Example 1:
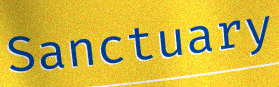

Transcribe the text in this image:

Sanctuary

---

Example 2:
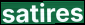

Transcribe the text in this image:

satires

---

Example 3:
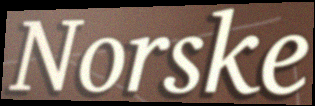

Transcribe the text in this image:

Norske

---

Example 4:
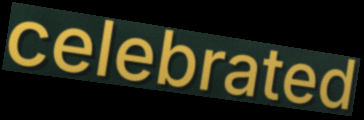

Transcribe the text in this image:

celebrated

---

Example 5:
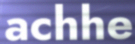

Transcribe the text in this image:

achhe